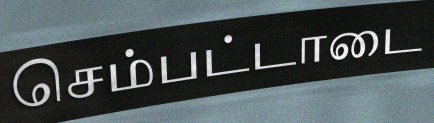
செம்பட்டாடை